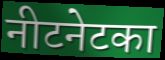
नीटनेटका